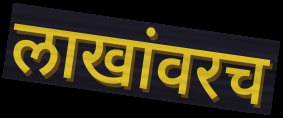
लाखांवरच